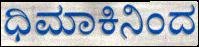
ಧಿಮಾಕಿನಿಂದ